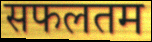
सफलतम